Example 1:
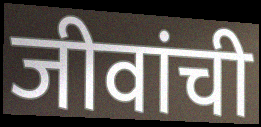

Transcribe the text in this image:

जीवांची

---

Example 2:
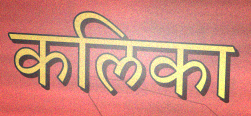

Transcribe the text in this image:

कलिका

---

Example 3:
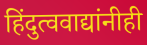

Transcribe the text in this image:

हिंदुत्ववाद्यांनीही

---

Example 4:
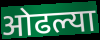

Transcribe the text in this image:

ओढल्या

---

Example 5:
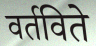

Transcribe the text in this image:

वर्तविते